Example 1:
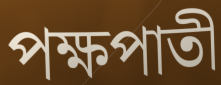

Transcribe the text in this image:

পক্ষপাতী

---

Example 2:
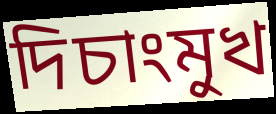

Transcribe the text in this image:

দিচাংমুখ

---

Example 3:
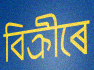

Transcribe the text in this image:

বিক্ৰীৰে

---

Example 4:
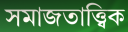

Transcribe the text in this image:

সমাজতাত্ত্বিক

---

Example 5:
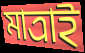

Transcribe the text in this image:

মাত্ৰাই